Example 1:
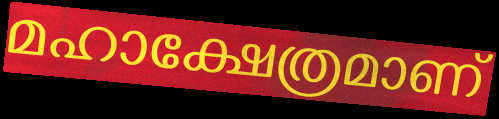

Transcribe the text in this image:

മഹാക്ഷേത്രമാണ്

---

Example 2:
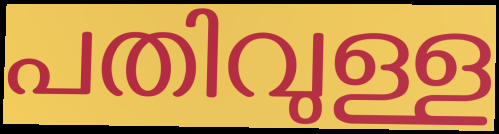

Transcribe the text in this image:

പതിവുള്ള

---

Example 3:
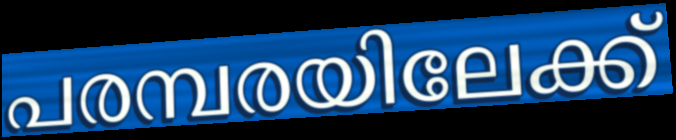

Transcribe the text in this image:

പരമ്പരയിലേക്ക്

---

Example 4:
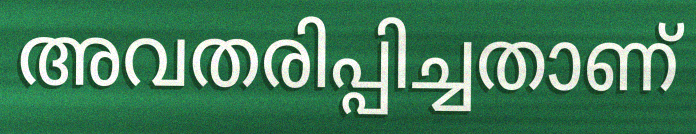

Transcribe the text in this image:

അവതരിപ്പിച്ചതാണ്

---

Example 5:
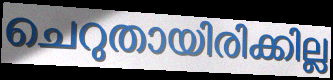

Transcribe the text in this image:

ചെറുതായിരിക്കില്ല